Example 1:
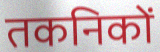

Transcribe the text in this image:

तकनिकों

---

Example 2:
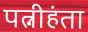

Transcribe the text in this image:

पत्नीहंता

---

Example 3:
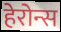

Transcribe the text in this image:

हेरोन्स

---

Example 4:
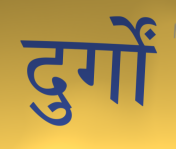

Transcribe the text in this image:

दुर्गों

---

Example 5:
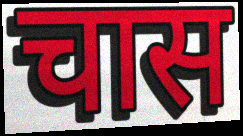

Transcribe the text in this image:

चास